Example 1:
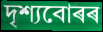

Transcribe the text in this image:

দৃশ্যবোৰৰ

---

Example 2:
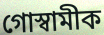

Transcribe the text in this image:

গোস্বামীক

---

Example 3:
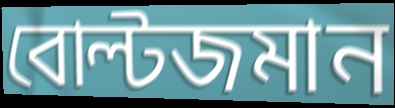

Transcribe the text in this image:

বোল্টজমান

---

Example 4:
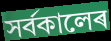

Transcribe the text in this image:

সৰ্বকালেৰ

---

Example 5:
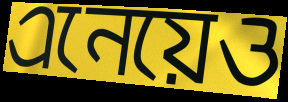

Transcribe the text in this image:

এনেয়েও